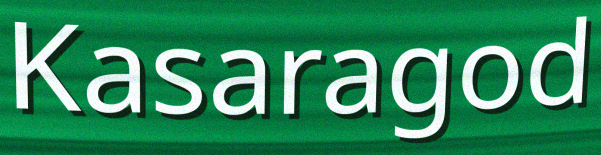
Kasaragod